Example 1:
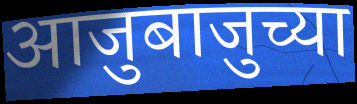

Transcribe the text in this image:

आजुबाजुच्या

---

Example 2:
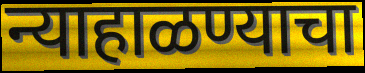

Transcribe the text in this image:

न्याहाळण्याचा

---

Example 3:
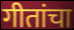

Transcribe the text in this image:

गीतांचा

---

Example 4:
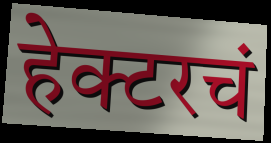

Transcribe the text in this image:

हेक्टरचं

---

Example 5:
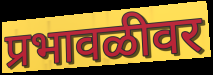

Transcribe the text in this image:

प्रभावळीवर